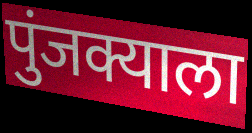
पुंजक्याला